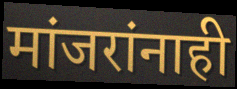
मांजरांनाही